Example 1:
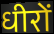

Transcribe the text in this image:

धीरों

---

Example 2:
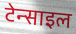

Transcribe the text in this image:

टेन्साइल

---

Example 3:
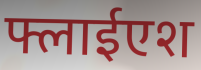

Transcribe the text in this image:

फ्लाईएश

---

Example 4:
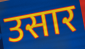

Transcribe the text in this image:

उसार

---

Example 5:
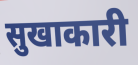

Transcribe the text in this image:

सुखाकारी